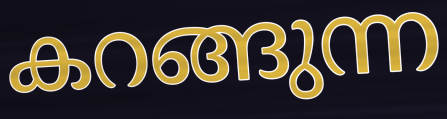
കറങ്ങുന്ന